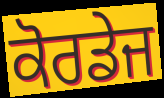
ਕੋਰਡੇਜ